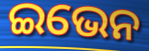
ଇଭେନ